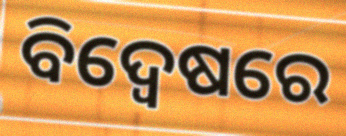
ବିଦ୍ଵେଷରେ